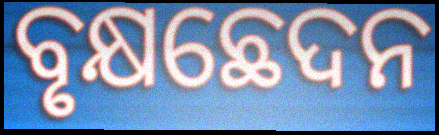
ବୃକ୍ଷଛେଦନ